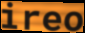
ireo